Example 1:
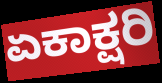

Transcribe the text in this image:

ಏಕಾಕ್ಷರಿ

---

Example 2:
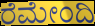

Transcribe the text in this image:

ರೆಮೇಂದಿ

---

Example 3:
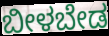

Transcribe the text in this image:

ಬೀಳಬೇಡ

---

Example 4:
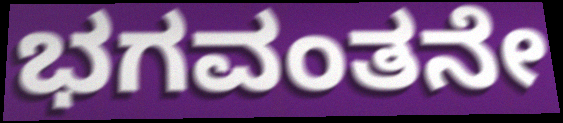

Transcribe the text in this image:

ಭಗವಂತನೇ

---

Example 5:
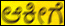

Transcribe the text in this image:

ಆಕೀಗೆ